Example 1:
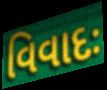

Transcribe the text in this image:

વિવાદઃ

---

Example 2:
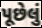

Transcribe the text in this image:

પૂછેલું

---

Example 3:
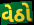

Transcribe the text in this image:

વેઠો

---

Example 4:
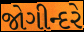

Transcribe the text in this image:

જોગીન્દરે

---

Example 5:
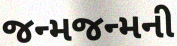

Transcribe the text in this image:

જન્મજન્મની